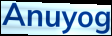
Anuyog